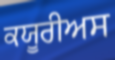
ਕਯੂਰੀਅਸ